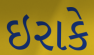
ઇરાકે